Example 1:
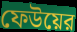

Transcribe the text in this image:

ফেউয়ের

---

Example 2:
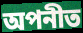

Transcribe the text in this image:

অপনীত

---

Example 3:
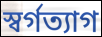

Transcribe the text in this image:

স্বর্গত্যাগ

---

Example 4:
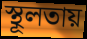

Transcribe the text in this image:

স্থূলতায়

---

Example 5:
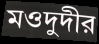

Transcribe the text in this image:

মওদুদীর